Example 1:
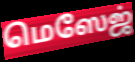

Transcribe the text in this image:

மெஸேஜ்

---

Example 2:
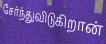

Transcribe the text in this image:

சேர்ந்துவிடுகிறான்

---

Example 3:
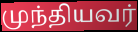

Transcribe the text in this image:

முந்தியவர்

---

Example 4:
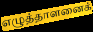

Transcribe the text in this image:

எழுத்தாளனைக்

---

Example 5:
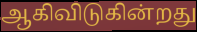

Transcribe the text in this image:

ஆகிவிடுகின்றது